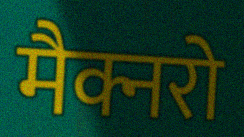
मैक्नरो